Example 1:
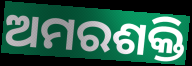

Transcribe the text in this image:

ଅମରଶକ୍ତି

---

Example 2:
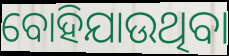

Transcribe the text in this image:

ବୋହିଯାଉଥିବା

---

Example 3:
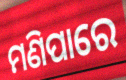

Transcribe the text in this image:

ମଣିପାରେ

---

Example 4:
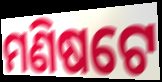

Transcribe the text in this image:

ମଣିଷଟେ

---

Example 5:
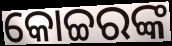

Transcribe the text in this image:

କୋଚ୍ଚରଙ୍କ